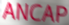
ANCAP